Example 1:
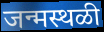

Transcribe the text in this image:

जन्मस्थळी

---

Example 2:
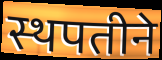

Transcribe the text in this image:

स्थपतीने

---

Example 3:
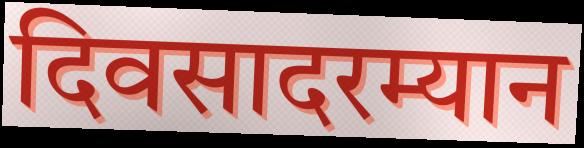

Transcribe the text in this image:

दिवसादरम्यान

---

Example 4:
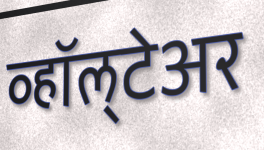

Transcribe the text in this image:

व्हॉल्टेअर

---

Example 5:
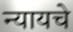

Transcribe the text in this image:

न्यायचे